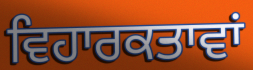
ਵਿਹਾਰਕਤਾਵਾਂ